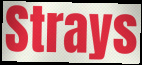
Strays